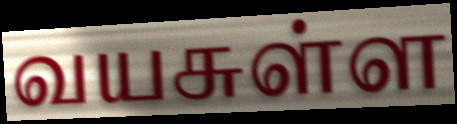
வயசுள்ள